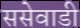
ससेवाडी